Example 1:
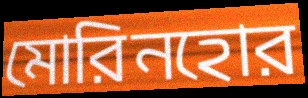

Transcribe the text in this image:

মোরিনহোর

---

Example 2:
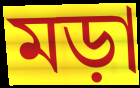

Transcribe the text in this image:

মড়া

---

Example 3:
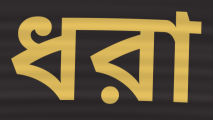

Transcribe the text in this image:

ধরা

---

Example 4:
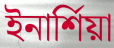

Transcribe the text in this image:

ইনার্শিয়া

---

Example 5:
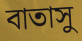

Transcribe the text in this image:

বাতাসু